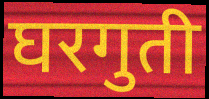
घरगुती